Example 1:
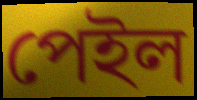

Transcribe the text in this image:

পেইল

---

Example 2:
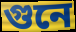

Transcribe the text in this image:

গুনে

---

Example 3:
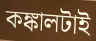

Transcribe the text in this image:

কঙ্কালটাই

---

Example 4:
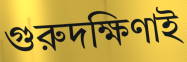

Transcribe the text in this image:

গুরুদক্ষিণাই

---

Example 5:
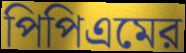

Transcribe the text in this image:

পিপিএমের